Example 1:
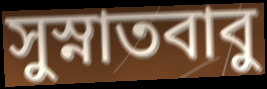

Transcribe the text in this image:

সুস্নাতবাবু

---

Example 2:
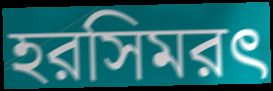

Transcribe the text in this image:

হরসিমরৎ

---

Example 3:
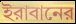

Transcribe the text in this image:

ইরাবানের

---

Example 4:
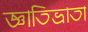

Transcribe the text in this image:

জ্ঞাতিভ্রাতা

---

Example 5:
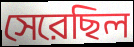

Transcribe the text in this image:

সেরেছিল